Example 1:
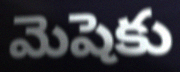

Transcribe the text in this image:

మెషెకు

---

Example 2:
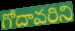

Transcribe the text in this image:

గోదావరిని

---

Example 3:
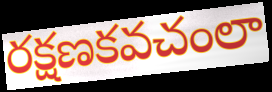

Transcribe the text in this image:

రక్షణకవచంలా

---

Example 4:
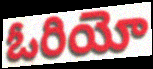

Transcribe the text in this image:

ఓరియో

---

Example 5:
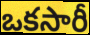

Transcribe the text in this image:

ఒకసారీ